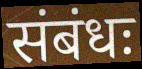
संबंधः